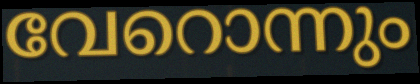
വേറൊന്നും